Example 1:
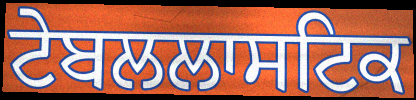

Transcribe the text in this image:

ਟੇਬਲਲਾਸਟਿਕ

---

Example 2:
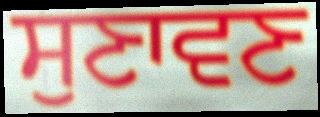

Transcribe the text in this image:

ਸੁਣਾਵਣ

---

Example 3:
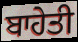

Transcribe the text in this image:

ਬਾਹੇਤੀ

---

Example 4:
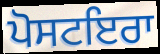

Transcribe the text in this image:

ਪੋਸਟਇਰਾ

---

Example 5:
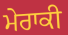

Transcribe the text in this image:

ਮੇਰਾਕੀ